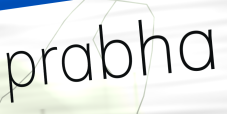
prabha